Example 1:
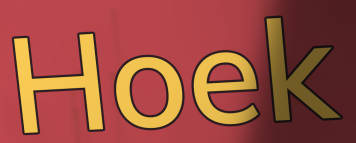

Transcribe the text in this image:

Hoek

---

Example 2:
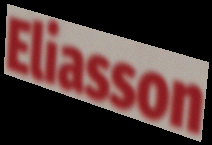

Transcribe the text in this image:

Eliasson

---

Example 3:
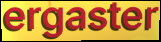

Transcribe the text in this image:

ergaster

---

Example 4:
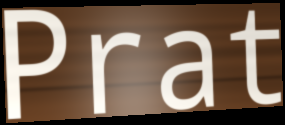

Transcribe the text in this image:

Prat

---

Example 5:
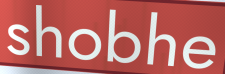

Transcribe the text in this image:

shobhe